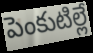
పెంకుటిల్లే